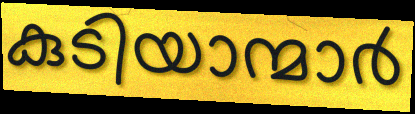
കുടിയാന്മാർ